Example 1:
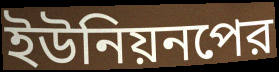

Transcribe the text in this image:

ইউনিয়নপের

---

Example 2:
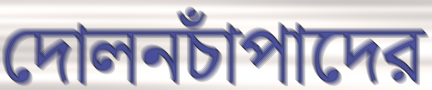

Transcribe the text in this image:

দোলনচাঁপাদের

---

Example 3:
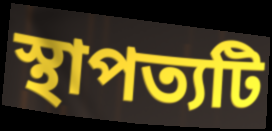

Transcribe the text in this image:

স্থাপত্যটি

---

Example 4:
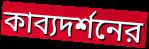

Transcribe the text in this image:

কাব্যদর্শনের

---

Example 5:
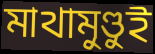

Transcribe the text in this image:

মাথামুণ্ডুই